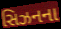
સિઝનના